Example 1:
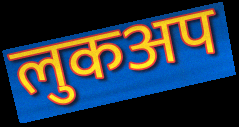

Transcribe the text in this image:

लुकअप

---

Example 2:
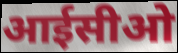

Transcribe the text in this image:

आईसीओ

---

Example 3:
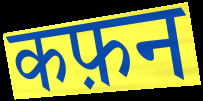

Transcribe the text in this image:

कफ़न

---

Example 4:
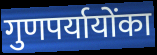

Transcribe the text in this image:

गुणपर्यायोंका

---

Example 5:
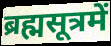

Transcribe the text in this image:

ब्रह्मसूत्रमें